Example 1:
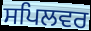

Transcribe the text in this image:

ਸਪਿਲਵਰ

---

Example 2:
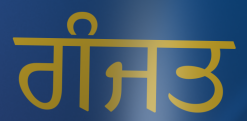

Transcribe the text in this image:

ਗੰਜਤ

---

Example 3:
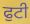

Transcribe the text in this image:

ਫੁਟੀ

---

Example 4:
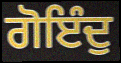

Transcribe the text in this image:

ਗੋਇੰਦੁ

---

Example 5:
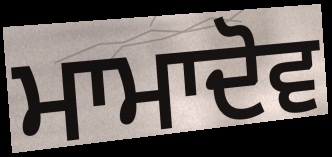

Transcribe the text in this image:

ਮਾਮਾਦੋਵ